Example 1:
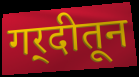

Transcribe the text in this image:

गर्दीतून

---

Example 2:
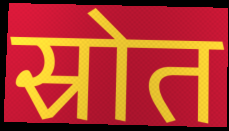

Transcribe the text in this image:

स्रोत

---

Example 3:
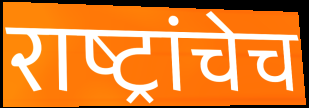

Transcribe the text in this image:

राष्ट्रांचेच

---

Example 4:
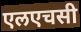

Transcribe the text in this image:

एलएचसी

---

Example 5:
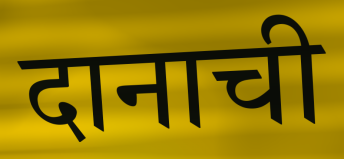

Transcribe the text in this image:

दानाची